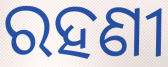
ରହଣୀ